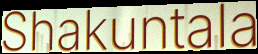
Shakuntala